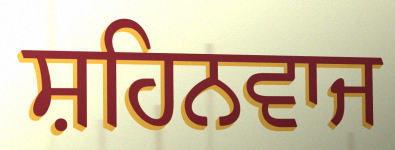
ਸ਼ਹਿਨਵਾਜ